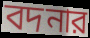
বদনার